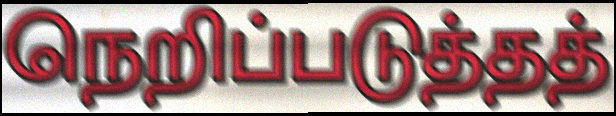
நெறிப்படுத்தத்